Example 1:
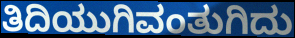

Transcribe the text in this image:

ತಿದಿಯುಗಿವಂತುಗಿದು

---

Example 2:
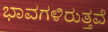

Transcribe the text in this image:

ಭಾವಗಳಿರುತ್ತವೆ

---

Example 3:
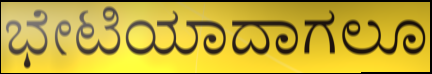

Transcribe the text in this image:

ಭೇಟಿಯಾದಾಗಲೂ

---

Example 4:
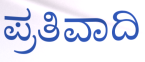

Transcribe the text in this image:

ಪ್ರತಿವಾದಿ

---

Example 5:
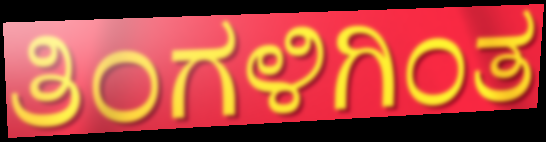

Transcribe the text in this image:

ತಿಂಗಳಿಗಿಂತ